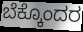
ಬೆಕ್ಕೊಂದರ